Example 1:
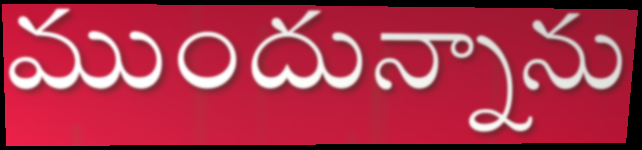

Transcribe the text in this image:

ముందున్నాను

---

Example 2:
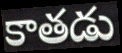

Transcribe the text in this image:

కాతడు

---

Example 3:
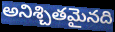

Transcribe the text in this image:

అనిశ్చితమైనది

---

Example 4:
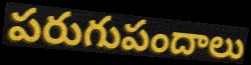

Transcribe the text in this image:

పరుగుపందాలు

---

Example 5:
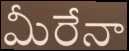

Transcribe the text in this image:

మీరేనా